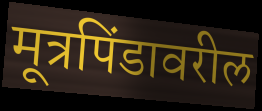
मूत्रपिंडावरील